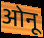
ओनू